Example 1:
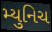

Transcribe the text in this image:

મ્યુનિચ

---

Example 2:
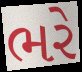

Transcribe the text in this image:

ભરે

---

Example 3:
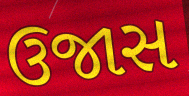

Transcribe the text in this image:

ઉજાસ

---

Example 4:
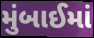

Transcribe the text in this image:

મુંબાઈમાં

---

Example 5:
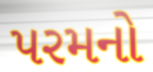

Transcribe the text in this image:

પરમનો